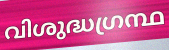
വിശുദ്ധഗ്രന്ഥ